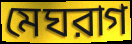
মেঘরাগ